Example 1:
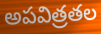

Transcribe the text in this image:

అపవిత్రతల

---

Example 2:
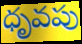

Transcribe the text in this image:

ధృవపు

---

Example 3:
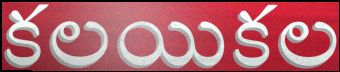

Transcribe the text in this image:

కలయికల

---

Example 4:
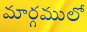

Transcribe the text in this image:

మార్గములో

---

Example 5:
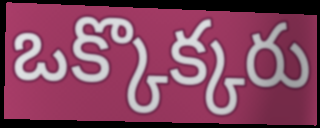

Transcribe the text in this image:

ఒక్కొక్కరు